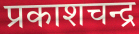
प्रकाशचन्द्र